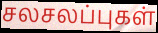
சலசலப்புகள்